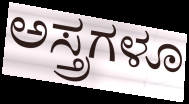
ಅಸ್ತ್ರಗಳೂ